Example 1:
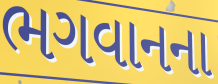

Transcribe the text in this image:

ભગવાનના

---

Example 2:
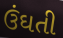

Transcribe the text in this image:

ઉંઘતી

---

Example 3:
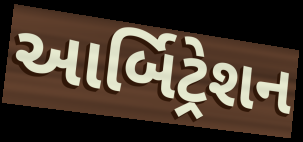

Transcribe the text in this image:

આર્બિટ્રેશન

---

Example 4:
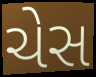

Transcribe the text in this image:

ચેસ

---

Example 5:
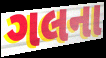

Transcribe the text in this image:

ગલના